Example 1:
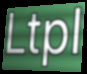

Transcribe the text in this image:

Ltpl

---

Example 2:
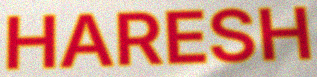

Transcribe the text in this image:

HARESH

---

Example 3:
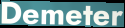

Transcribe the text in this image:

Demeter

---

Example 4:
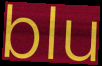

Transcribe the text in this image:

blu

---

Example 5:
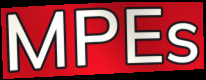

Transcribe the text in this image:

MPEs